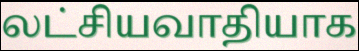
லட்சியவாதியாக